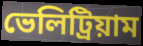
ভেলিট্রিয়াম